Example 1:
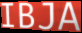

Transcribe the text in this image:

IBJA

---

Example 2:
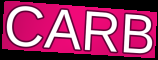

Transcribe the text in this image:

CARB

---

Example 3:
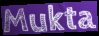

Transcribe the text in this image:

Mukta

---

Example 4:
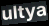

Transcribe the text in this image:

ultya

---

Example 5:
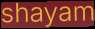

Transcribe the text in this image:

shayam